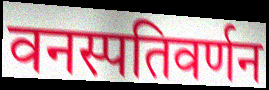
वनस्पतिवर्णन